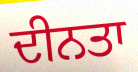
ਦੀਨਤਾ